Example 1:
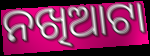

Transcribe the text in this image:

ନଖିଆଟା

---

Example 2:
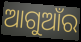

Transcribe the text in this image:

ଆଗୁଆଁର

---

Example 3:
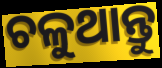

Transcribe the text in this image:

ଚଳୁଥାନ୍ତୁ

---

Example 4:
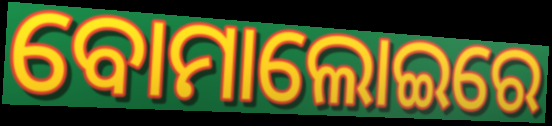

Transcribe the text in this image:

ବୋମାଲୋଇରେ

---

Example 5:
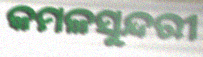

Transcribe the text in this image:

କମଳସୁନ୍ଦରୀ